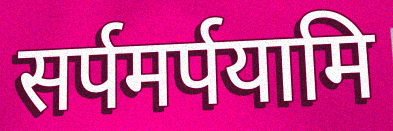
सर्पमर्पयामि